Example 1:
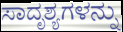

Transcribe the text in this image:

ಸಾದೃಶ್ಯಗಳನ್ನು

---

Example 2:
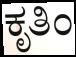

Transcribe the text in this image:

ಕೃತಿಂ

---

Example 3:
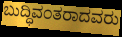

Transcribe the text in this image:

ಬುದ್ಧಿವಂತರಾದವರು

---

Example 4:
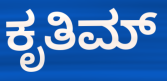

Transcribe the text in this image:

ಕೃತಿಮ್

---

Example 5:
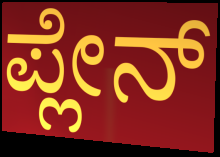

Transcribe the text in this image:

ಪ್ಲೇನ್